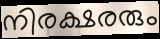
നിരക്ഷരരും